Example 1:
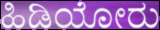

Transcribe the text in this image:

ಹಿಡಿಯೋರು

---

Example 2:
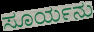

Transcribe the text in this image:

ಸೂರ್ಯನು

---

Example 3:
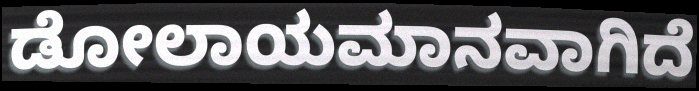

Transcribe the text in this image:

ಡೋಲಾಯಮಾನವಾಗಿದೆ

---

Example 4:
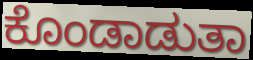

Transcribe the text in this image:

ಕೊಂಡಾಡುತಾ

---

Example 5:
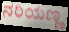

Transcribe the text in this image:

ನರಿಯಣ್ಣ